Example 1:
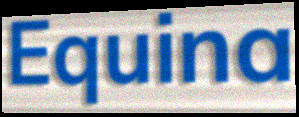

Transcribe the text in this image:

Equina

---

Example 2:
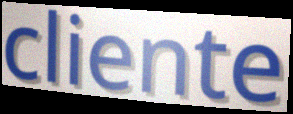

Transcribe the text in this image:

cliente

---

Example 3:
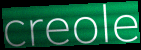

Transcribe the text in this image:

creole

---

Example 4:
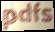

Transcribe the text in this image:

pdfs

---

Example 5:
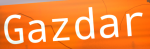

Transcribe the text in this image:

Gazdar